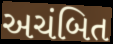
અચંબિત